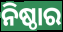
ନିଷ୍ଠାର